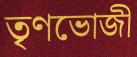
তৃণভোজী